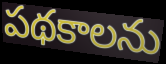
పథకాలను